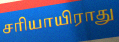
சரியாயிராது